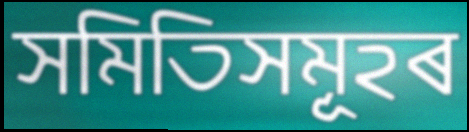
সমিতিসমূহৰ